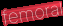
femoral